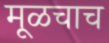
मूळचाच